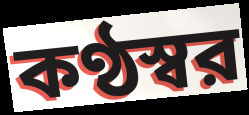
কণ্ঠস্বর